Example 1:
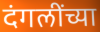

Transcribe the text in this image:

दंगलींच्या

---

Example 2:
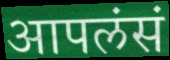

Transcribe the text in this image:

आपलंसं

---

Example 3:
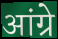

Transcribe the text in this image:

आंग्रे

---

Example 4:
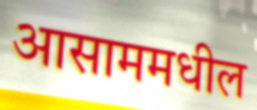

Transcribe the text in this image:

आसाममधील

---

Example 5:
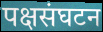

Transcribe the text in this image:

पक्षसंघटन